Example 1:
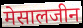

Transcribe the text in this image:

मेसालजीन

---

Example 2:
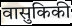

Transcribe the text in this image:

वासुकिकी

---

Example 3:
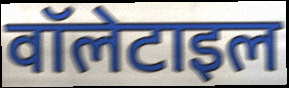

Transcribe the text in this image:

वॉलेटाइल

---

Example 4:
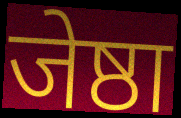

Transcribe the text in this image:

जेष्ठा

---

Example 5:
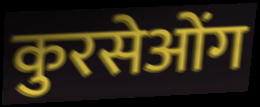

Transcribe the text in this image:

कुरसेओंग